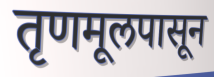
तृणमूलपासून